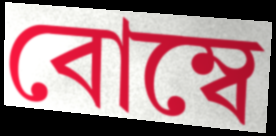
বোম্বে